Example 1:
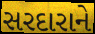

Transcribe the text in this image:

સરદારાને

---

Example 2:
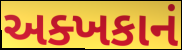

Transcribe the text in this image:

અક્ખકાનં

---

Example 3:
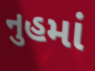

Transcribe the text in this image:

નુહમાં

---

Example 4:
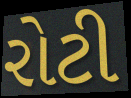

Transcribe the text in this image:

રોટી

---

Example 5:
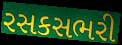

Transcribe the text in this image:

રસકસભરી